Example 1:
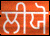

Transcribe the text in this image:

ਲੀਯੋ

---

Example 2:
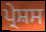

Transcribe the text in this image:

ਪ੍ਰੇਸ਼ਸ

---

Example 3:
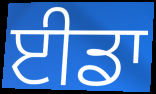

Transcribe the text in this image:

ਈਡਾ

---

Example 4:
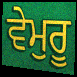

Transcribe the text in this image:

ਵੇਮੁਰੂ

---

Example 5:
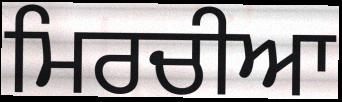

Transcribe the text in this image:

ਮਿਰਚੀਆ